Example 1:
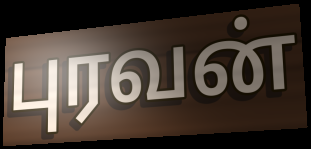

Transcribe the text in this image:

புரவன்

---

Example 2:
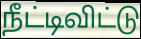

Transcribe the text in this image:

நீட்டிவிட்டு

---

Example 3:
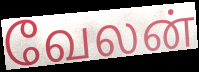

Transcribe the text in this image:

வேலன்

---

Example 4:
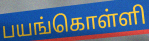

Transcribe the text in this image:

பயங்கொள்ளி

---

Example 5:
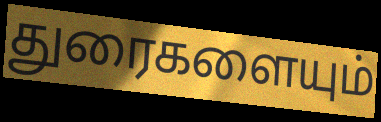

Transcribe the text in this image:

துரைகளையும்